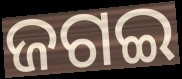
ଜଗଇ